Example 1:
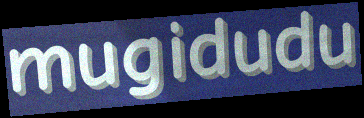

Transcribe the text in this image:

mugidudu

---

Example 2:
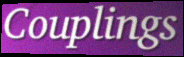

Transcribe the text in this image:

Couplings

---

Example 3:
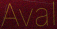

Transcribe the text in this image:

Aval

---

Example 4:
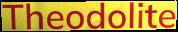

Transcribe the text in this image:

Theodolite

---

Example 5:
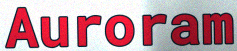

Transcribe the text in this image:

Auroram